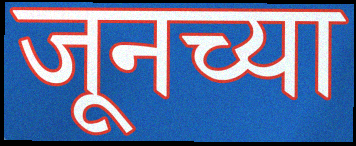
जूनच्या